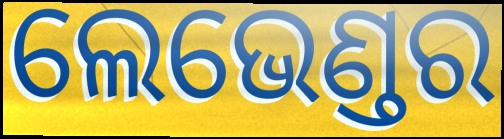
ଲେଭେଣ୍ଡର